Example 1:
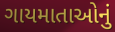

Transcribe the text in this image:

ગાયમાતાઓનું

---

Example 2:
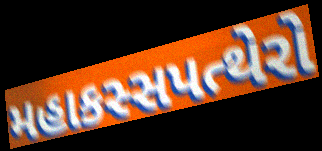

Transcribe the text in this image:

મહાકસ્સપત્થેરો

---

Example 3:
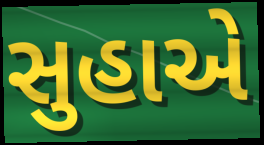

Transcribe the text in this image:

સુહાએ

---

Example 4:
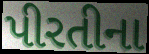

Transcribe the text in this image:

પીરતીના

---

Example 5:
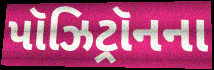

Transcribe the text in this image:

પૉઝિટ્રૉનના